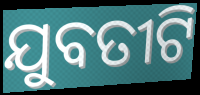
ଯୁବତୀଟି